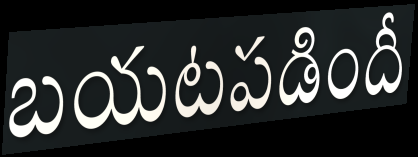
బయటపడిందీ